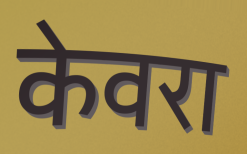
केवरा